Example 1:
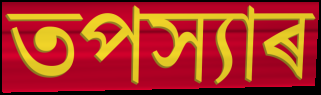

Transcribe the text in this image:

তপস্যাৰ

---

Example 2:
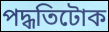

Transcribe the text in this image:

পদ্ধতিটোক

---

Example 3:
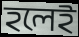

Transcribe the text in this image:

হলেই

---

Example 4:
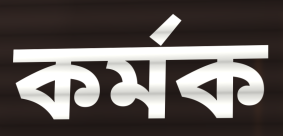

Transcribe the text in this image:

কৰ্মক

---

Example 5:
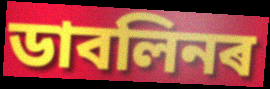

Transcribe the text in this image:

ডাবলিনৰ